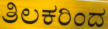
ತಿಲಕರಿಂದ